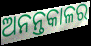
ଅନନ୍ତକାଳର